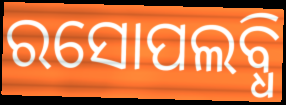
ରସୋପଲବ୍ଧି